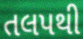
તલપથી